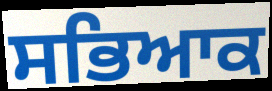
ਸਭਿਆਕ